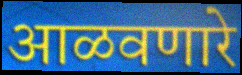
आळवणारे